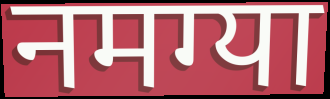
नमग्या